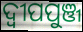
ଦ୍ଵୀପପୁଞ୍ଜ